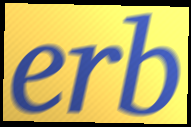
erb